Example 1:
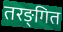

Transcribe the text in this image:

तरङ्गित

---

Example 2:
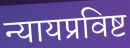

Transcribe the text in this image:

न्यायप्रविष्ट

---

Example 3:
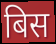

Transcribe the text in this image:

बिस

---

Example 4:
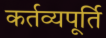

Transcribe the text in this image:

कर्तव्यपूर्ति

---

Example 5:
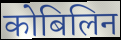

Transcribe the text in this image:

कोबिलिन